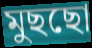
মুছছো